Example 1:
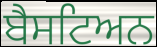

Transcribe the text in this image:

ਬੈਸਟਿਅਨ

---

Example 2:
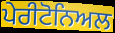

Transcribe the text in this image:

ਪੇਰੀਟੋਨਿਅਲ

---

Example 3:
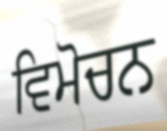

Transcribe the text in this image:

ਵਿਮੋਚਨ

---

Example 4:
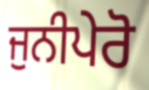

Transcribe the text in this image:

ਜੁਨੀਪੇਰੋ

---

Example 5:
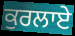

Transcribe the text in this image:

ਕੁਰਲਾਏ